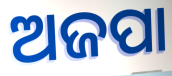
ଅଜପା